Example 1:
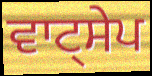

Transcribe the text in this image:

ਵਾਟ੍ਸੇਪ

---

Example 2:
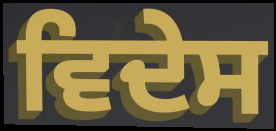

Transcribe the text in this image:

ਵਿਦੇਸ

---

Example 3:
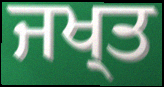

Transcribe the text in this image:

ਜਖ੍ਤ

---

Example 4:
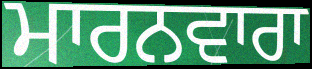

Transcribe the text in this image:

ਮਾਰਨਵਾਰਾ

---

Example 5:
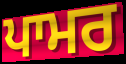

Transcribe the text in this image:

ਪਾਮਰ